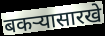
बकऱ्यासारखे